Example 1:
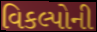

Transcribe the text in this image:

વિકલ્પોની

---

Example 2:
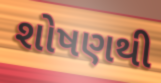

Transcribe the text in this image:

શોષણથી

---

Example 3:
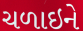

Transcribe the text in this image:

ચળાઇને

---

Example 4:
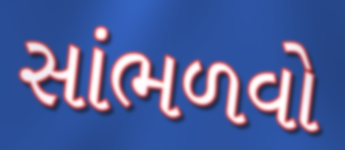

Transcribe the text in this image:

સાંભળવો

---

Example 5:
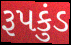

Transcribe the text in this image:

રૂપકુંડ